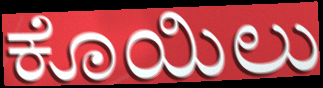
ಕೊಯಿಲು